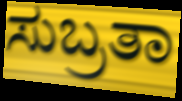
ಸುಬ್ರತಾ